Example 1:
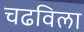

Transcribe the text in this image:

चढविला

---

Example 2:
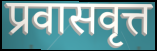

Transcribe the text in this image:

प्रवासवृत्त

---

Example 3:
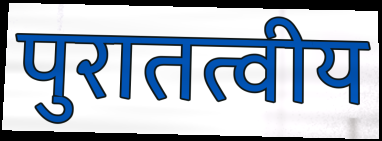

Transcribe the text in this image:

पुरातत्वीय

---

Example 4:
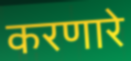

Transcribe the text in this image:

करणारे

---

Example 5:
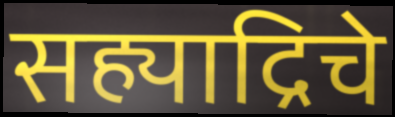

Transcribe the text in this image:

सह्याद्रिचे